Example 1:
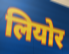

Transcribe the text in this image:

लियोर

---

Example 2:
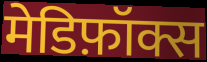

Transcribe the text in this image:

मेडिफ़ॉक्स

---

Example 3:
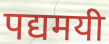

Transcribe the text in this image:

पद्यमयी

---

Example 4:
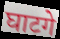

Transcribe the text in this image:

घाटगे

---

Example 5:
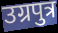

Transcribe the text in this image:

उग्रपुत्र